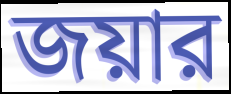
জয়ার